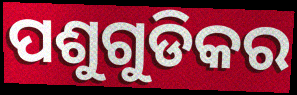
ପଶୁଗୁଡିକର